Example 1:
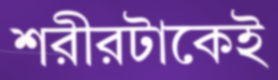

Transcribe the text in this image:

শরীরটাকেই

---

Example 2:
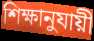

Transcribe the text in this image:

শিক্ষানুযায়ী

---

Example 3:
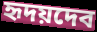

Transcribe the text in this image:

হৃদয়দেব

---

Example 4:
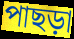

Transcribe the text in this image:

পাছড়া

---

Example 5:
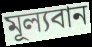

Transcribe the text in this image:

মূল্যবান